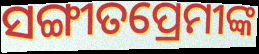
ସଙ୍ଗୀତପ୍ରେମୀଙ୍କ